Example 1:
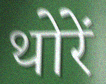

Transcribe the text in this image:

थोरें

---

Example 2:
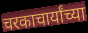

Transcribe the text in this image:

चरकाचार्यांच्या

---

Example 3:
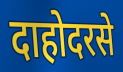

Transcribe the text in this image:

दाहोदरसे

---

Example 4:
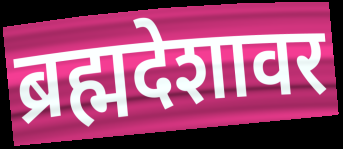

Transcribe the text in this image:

ब्रह्मदेशावर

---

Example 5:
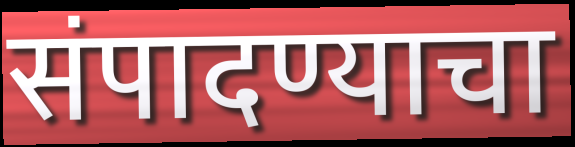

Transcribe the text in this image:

संपादण्याचा